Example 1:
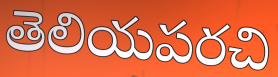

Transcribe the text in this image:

తెలియపరచి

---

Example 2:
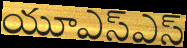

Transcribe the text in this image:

యూఎస్ఎస్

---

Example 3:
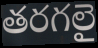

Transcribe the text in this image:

తరగలై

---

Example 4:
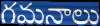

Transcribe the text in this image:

గమనాలు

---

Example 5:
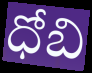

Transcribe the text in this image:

ధోబి